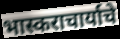
भास्कराचार्याचे